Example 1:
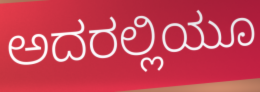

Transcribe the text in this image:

ಅದರಲ್ಲಿಯೂ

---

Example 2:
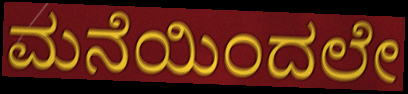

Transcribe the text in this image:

ಮನೆಯಿಂದಲೇ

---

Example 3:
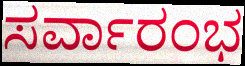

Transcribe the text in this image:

ಸರ್ವಾರಂಭ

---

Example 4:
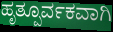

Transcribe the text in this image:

ಹೃತ್ಪೂರ್ವಕವಾಗಿ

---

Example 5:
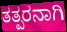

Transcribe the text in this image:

ತತ್ಪರನಾಗಿ